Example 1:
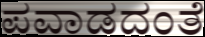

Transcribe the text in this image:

ಪವಾಡದಂತೆ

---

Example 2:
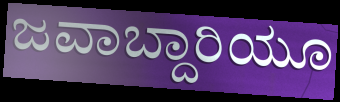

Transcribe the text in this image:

ಜವಾಬ್ದಾರಿಯೂ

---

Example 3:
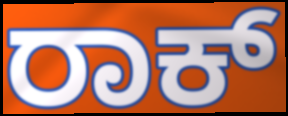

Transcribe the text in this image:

ರಾಕ್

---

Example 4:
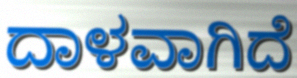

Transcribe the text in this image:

ದಾಳವಾಗಿದೆ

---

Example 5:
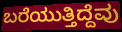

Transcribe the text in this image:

ಬರೆಯುತ್ತಿದ್ದೆವು